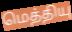
மெத்தியு